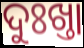
ଦୁଃଖ୍ତା